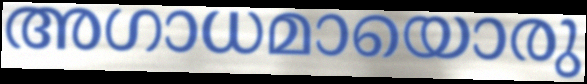
അഗാധമായൊരു